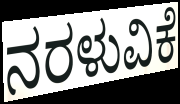
ನರಳುವಿಕೆ